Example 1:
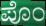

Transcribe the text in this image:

ಪೊಂ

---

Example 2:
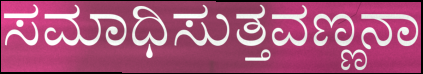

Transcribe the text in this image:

ಸಮಾಧಿಸುತ್ತವಣ್ಣನಾ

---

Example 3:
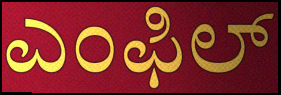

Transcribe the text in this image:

ಎಂಫಿಲ್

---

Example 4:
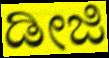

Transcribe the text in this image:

ಡೀಜಿ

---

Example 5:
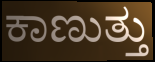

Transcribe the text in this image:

ಕಾಣುತ್ತು